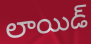
లాయిడ్